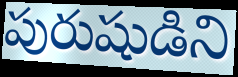
పురుషుడిని